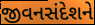
જીવનસંદેશને